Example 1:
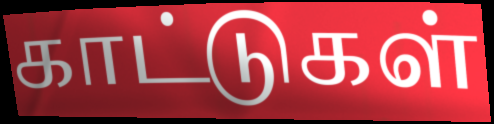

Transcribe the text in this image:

காட்டுகள்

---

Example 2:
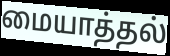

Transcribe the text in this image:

மையாத்தல்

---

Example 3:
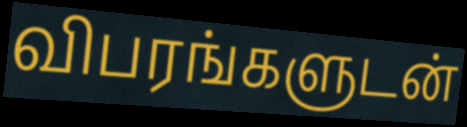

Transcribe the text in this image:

விபரங்களுடன்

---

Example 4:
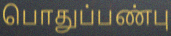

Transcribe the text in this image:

பொதுப்பண்பு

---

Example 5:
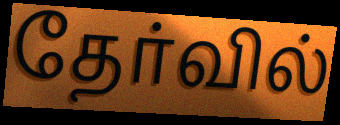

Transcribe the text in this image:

தேர்வில்